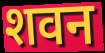
शवन